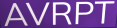
AVRPT